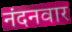
नंदनवार